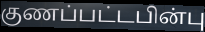
குணப்பட்டபின்பு